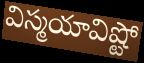
విస్మయావిష్టో